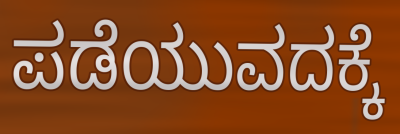
ಪಡೆಯುವದಕ್ಕೆ